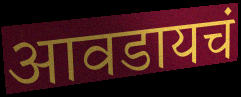
आवडायचं